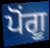
ਪੋਂਗੂ